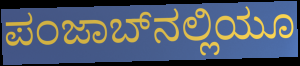
ಪಂಜಾಬ್‌ನಲ್ಲಿಯೂ